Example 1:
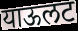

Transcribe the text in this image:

याऊलट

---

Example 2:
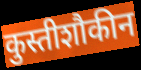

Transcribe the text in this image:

कुस्तीशौकीन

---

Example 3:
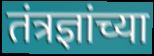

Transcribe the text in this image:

तंत्रज्ञांच्या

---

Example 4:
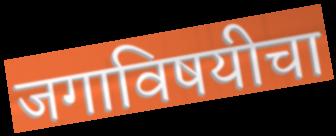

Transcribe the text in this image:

जगाविषयीचा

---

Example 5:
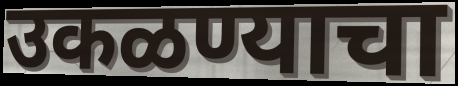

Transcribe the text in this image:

उकळण्याचा